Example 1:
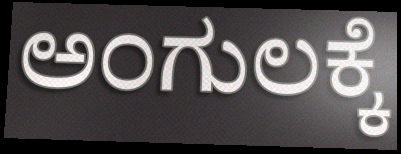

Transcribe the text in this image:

ಅಂಗುಲಕ್ಕೆ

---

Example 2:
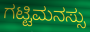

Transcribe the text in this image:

ಗಟ್ಟಿಮನಸ್ಸು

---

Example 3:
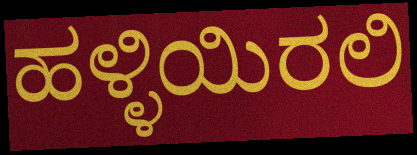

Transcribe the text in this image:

ಹಳ್ಳಿಯಿರಲಿ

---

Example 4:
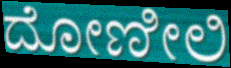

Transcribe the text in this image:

ದೋಣೀಲಿ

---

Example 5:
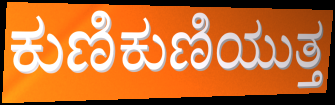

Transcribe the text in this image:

ಕುಣಿಕುಣಿಯುತ್ತ